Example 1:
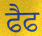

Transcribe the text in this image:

ਫੈਫ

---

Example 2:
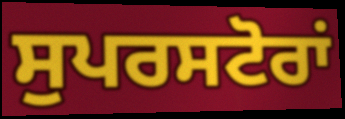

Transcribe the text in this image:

ਸੁਪਰਸਟੋਰਾਂ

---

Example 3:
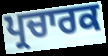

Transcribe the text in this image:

ਪ੍ਰਚਾਰਕ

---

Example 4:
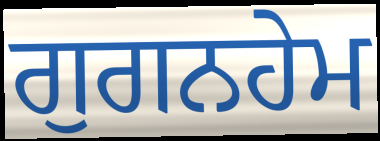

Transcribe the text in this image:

ਗੁਗਨਹੇਮ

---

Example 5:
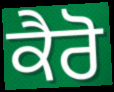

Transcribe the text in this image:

ਕੈਰੋ